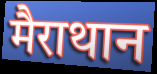
मैराथान